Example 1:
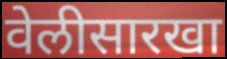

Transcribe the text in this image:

वेलीसारखा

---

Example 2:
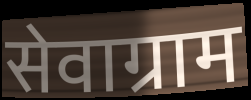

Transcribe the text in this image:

सेवाग्राम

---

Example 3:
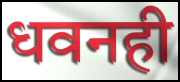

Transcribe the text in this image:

धवनही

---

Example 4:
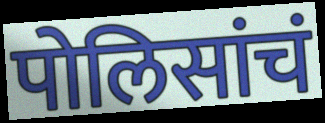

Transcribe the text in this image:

पोलिसांचं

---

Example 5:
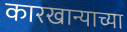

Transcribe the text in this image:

कारखान्याच्या